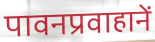
पावनप्रवाहानें